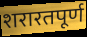
शरारतपूर्ण